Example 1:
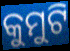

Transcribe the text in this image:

କୁମୁଟି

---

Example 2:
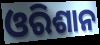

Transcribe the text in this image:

ଓରିଶାନ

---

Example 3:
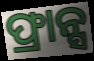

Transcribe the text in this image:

ଫ୍ରାନ୍ସ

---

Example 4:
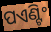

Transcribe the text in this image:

ପଏଣ୍ଟିଂ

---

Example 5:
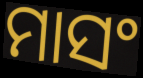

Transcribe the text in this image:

ମାସଂ